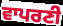
ਵਾਪਰਣੀ